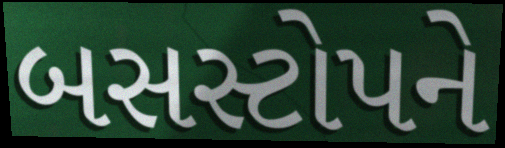
બસસ્ટોપને